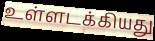
உள்ளடக்கியது